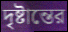
দৃষ্টান্তের